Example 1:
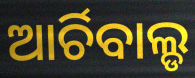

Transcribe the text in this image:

ଆର୍ଚିବାଲ୍ଡ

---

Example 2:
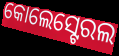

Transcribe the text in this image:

କୋଲେସ୍ଟେରଲ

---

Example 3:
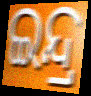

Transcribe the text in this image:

ଇନ୍ଦ୍ର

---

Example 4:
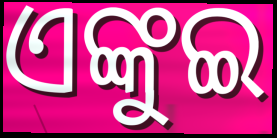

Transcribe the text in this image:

ଏଙ୍କୁଇ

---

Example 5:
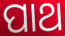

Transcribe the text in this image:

ପାଥ